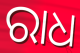
ରାଧ